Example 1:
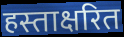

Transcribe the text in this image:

हस्ताक्षरित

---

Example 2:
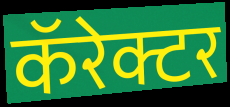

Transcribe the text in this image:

कॅरेक्टर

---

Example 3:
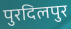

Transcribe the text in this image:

पुरदिलपुर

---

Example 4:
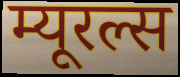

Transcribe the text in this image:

म्यूरल्स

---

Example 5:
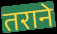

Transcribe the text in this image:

तराने